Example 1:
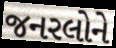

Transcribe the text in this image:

જનરલોને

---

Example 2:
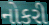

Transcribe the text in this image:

નોકરી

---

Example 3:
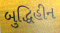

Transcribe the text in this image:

બુદ્ધિહીન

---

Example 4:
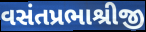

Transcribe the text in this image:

વસંતપ્રભાશ્રીજી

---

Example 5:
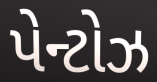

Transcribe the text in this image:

પેન્ટોઝ